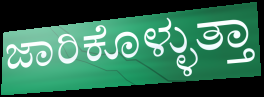
ಜಾರಿಕೊಳ್ಳುತ್ತಾ